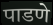
पाडणे